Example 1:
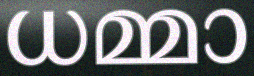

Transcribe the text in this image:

ധമ്മാ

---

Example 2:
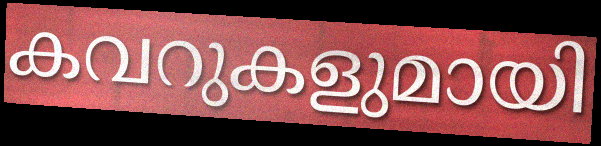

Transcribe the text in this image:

കവറുകളുമായി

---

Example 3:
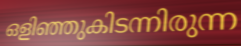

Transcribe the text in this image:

ഒളിഞ്ഞുകിടന്നിരുന്ന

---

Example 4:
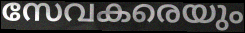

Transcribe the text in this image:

സേവകരെയും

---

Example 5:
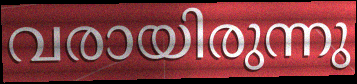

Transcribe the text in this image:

വരായിരുന്നു